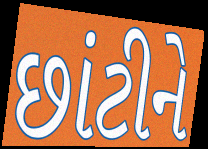
છાંટીને